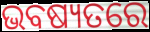
ଭବଷ୍ୟତରେ